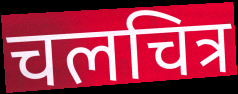
चलचित्र